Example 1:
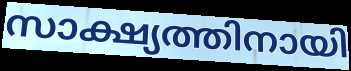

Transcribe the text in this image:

സാക്ഷ്യത്തിനായി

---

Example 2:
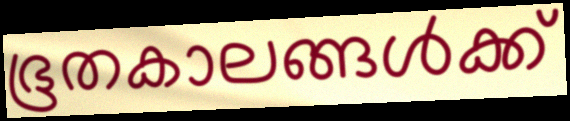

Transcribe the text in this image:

ഭൂതകാലങ്ങൾക്ക്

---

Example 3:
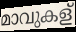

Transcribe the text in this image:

മാവുകള്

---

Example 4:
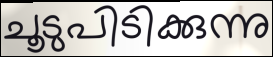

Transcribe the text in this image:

ചൂടുപിടിക്കുന്നു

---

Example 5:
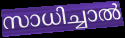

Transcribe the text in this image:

സാധിച്ചാൽ